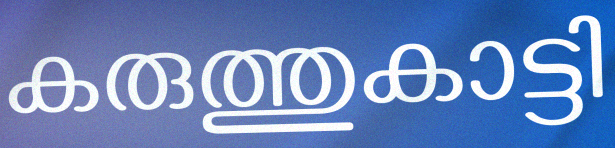
കരുത്തുകാട്ടി